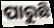
ପାରୁଛି